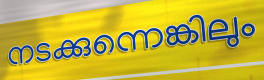
നടക്കുന്നെങ്കിലും